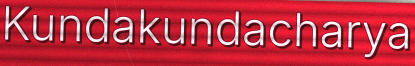
Kundakundacharya